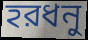
হরধনু